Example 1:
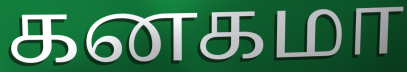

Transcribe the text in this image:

கனகமா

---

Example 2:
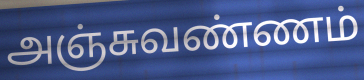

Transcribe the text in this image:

அஞ்சுவண்ணம்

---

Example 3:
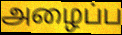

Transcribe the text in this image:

அழைப்ப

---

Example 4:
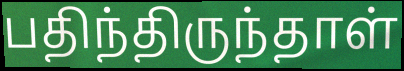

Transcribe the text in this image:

பதிந்திருந்தாள்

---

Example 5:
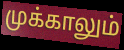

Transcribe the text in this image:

முக்காலும்